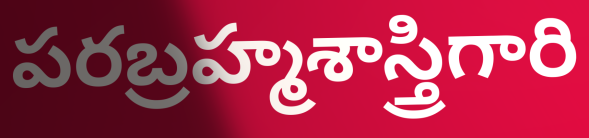
పరబ్రహ్మశాస్త్రిగారి